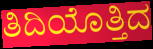
ತಿದಿಯೊತ್ತಿದ